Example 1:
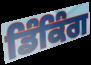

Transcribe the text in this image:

ਡਿੰਕਿੰਗ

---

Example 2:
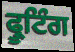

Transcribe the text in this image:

ਫ੍ਰੂਟਿੰਗ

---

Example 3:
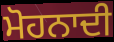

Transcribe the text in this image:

ਮੋਹਨਾਦੀ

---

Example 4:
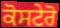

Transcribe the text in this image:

ਕੋਸਟੇਰੋ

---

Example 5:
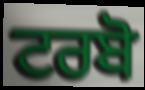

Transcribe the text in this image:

ਟਰਬੋ